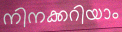
നിനക്കറിയാം